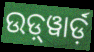
ଉଡ଼୍‍ୱାର୍ଡ଼